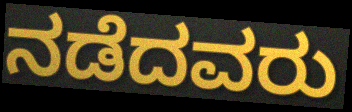
ನಡೆದವರು